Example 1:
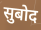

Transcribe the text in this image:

सुबोद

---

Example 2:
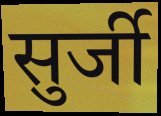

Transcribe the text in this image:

सुर्जी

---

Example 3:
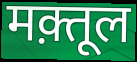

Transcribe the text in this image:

मक़्तूल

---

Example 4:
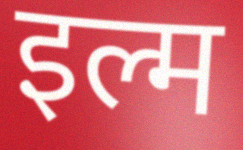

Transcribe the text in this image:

इल्म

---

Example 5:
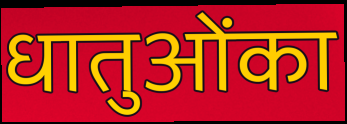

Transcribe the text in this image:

धातुओंका